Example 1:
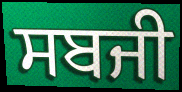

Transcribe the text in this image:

ਸਬਜੀ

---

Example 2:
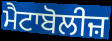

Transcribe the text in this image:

ਮੈਟਾਬੋਲੀਜ਼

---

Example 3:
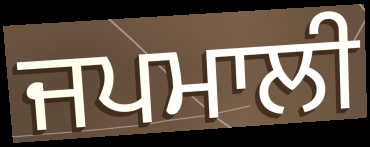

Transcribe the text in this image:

ਜਪਮਾਲੀ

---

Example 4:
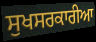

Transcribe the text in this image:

ਸੁਖਸਰਕਾਰੀਆ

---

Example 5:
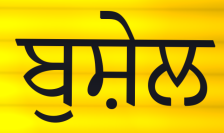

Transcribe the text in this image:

ਬੁਸ਼ੇਲ